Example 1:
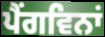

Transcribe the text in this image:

ਪੈਂਗਵਿਨਾਂ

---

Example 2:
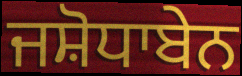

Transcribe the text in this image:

ਜਸ਼ੋਧਾਬੇਨ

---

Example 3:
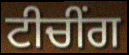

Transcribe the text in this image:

ਟੀਚੀਂਗ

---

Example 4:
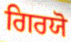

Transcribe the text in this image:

ਗਿਰਯੋ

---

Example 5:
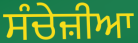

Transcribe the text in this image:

ਸੰਚੇਜ਼ੀਆ